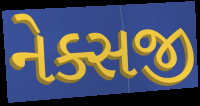
નેક્સજી